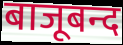
बाजूबन्द